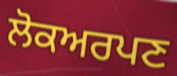
ਲੋਕਅਰਪਣ